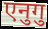
एनुगु